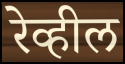
रेव्हील